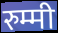
रुम्मी